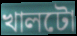
খালটো